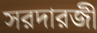
সরদারজী